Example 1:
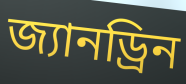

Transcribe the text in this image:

জ্যানড্রিন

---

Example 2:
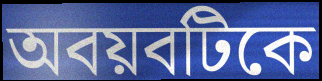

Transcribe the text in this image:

অবয়বটিকে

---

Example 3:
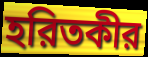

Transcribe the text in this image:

হরিতকীর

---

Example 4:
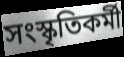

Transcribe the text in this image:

সংস্কৃতিকর্মী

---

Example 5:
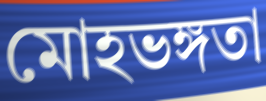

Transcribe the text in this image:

মোহভঙ্গতা